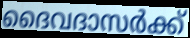
ദൈവദാസർക്ക്